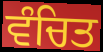
ਵੰਚਿਤ